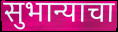
सुभान्याचा